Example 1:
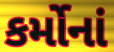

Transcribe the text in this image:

કર્મોનાં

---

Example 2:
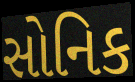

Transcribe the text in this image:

સોનિક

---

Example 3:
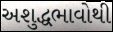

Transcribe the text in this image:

અશુદ્ધભાવોથી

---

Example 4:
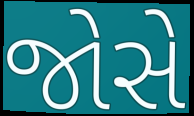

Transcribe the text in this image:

જોસે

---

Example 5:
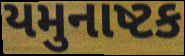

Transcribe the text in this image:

યમુનાષ્ટક